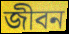
জীবন